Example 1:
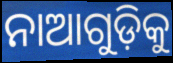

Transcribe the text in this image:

ନାଆଗୁଡ଼ିକୁ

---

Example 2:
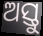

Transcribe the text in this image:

ଅସ୍ତୁ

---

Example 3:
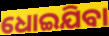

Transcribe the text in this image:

ଧୋଇଯିବା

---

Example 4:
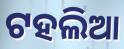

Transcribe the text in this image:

ଟହଲିଆ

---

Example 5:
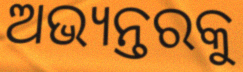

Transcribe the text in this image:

ଅଭ୍ୟନ୍ତରକୁ